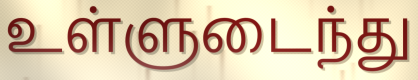
உள்ளுடைந்து